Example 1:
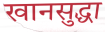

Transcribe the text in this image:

खानसुद्धा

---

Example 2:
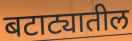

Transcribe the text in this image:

बटाट्यातील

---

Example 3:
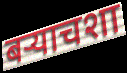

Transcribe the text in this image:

बर्‍याचशा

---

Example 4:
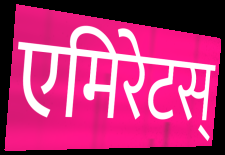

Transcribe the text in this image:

एमिरेटस्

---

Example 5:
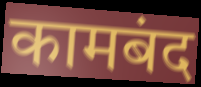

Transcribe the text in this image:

कामबंद